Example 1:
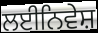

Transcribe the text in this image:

ਲਈਨਿਵੇਸ਼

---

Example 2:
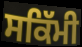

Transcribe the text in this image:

ਸਕਿੱਮੀ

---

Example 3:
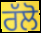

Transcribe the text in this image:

ਰੱਲੋ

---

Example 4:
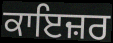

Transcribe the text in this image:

ਕਾਇਜ਼ਰ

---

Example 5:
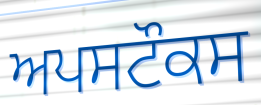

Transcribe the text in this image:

ਅਪਸਟੌਕਸ